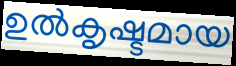
ഉൽകൃഷ്ടമായ